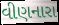
વીણનારા